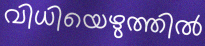
വിധിയെഴുത്തിൽ